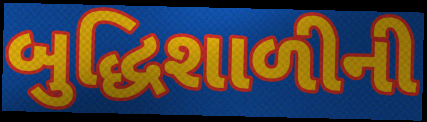
બુદ્ધિશાળીની